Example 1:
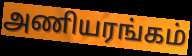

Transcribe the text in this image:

அணியரங்கம்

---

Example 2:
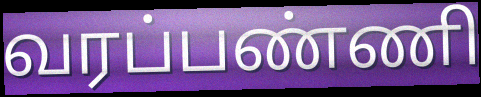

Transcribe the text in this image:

வரப்பண்ணி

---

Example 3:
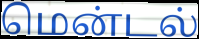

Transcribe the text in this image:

மென்டல்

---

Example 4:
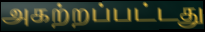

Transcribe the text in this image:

அகற்றப்பட்டது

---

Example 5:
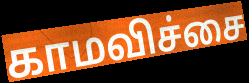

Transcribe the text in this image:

காமவிச்சை